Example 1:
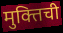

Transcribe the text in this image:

मुक्तिची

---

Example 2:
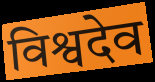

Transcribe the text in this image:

विश्वदेव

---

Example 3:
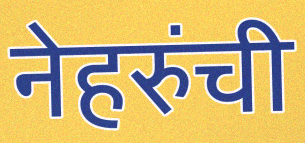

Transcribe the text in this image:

नेहरुंची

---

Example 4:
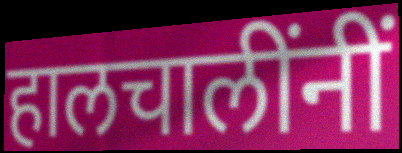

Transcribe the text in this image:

हालचालींनीं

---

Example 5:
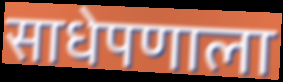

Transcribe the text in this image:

साधेपणाला